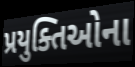
પ્રયુક્તિઓના